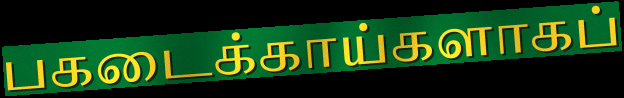
பகடைக்காய்களாகப்